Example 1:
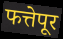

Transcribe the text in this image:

फत्तेपूर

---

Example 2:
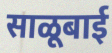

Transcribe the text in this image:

साळूबाई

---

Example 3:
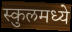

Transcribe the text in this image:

स्कुलमध्ये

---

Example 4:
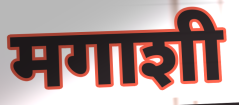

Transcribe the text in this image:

मगाशी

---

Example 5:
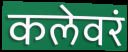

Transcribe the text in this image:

कलेवरं